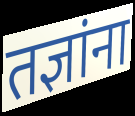
तज्ञांना